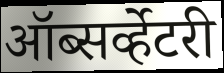
ऑब्सर्व्हेटरी